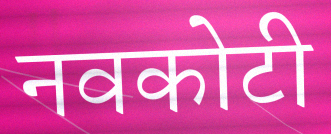
नवकोटी